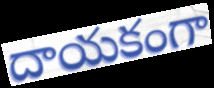
దాయకంగా